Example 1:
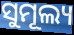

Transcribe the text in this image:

ସୁମୂଲ୍ୟ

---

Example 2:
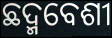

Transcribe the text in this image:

ଛଦ୍ମବେଶୀ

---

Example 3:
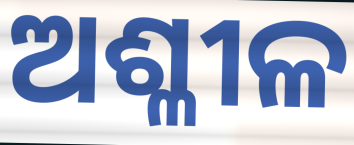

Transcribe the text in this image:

ଅଶ୍ଳୀଳ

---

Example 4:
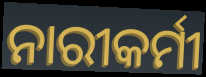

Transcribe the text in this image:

ନାରୀକର୍ମୀ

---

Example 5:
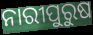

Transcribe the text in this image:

ନାରୀପୁରୁଷ